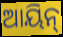
ଆୟିନ୍